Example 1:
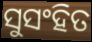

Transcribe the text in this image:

ସୁସଂହିତ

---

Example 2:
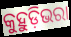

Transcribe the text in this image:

କୁହୁଡ଼ିଭରା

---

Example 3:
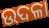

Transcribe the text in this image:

ଉଦଳା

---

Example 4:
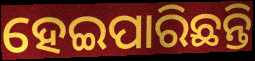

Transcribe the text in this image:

ହେଇପାରିଛନ୍ତି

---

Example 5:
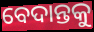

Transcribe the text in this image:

ବେଦାନ୍ତକୁ